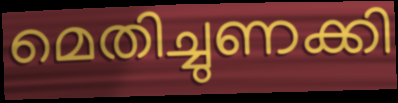
മെതിച്ചുണക്കി